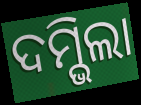
ଦମ୍ଭିଲା